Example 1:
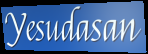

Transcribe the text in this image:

Yesudasan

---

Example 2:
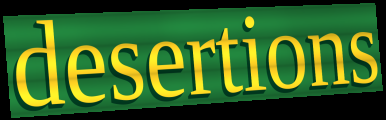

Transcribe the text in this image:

desertions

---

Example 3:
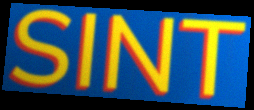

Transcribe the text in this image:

SINT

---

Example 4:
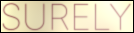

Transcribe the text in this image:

SURELY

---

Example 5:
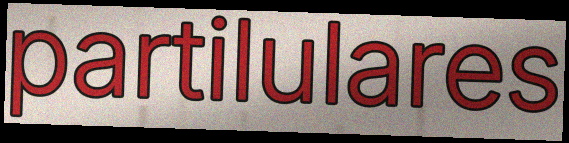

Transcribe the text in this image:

partilulares